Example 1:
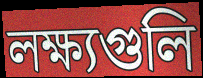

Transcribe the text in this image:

লক্ষ্যগুলি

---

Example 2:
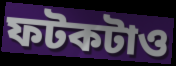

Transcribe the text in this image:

ফটকটাও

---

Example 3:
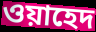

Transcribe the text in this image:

ওয়াহেদ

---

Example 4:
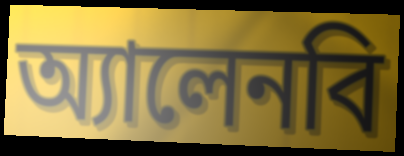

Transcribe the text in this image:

অ্যালেনবি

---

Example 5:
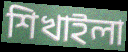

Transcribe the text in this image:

শিখাইলা